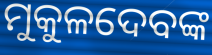
ମୁକୁଳଦେବଙ୍କ